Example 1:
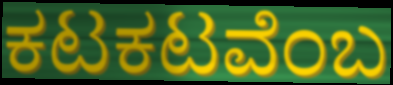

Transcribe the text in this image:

ಕಟಕಟವೆಂಬ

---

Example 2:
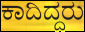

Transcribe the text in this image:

ಕಾದಿದ್ದರು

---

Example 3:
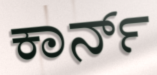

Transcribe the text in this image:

ಕಾರ್ನ್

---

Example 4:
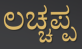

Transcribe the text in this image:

ಲಚ್ಚಪ್ಪ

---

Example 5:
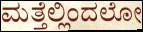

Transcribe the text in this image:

ಮತ್ತೆಲ್ಲಿಂದಲೋ